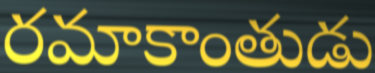
రమాకాంతుడు